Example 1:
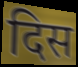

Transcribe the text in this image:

दिस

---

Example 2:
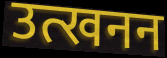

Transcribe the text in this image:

उत्खनन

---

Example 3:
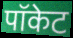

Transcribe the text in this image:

पॉकेट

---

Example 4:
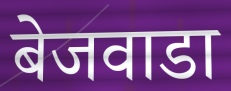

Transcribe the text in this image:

बेजवाडा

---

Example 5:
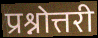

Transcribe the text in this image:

प्रश्नोत्तरी